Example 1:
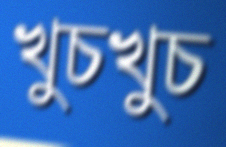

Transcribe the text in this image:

খুচখুচ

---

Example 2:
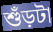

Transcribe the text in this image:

শুঁড়টা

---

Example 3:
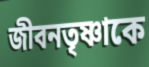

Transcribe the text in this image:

জীবনতৃষ্ণাকে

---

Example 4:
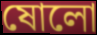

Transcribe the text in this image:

ষোলো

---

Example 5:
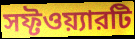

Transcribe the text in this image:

সফ্টওয়্যারটি